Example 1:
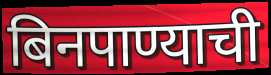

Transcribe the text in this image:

बिनपाण्याची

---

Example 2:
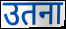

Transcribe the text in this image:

उतना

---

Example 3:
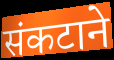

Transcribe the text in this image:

संकटाने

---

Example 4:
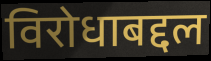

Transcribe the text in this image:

विरोधाबद्दल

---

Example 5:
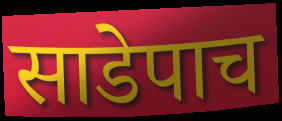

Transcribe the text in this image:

साडेपाच